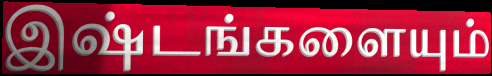
இஷ்டங்களையும்